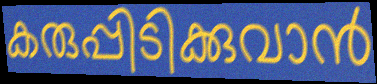
കരുപ്പിടിക്കുവാൻ